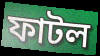
ফাটল